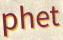
phet